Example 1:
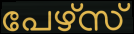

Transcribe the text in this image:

പേഴ്സ്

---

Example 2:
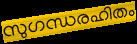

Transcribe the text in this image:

സുഗന്ധരഹിതം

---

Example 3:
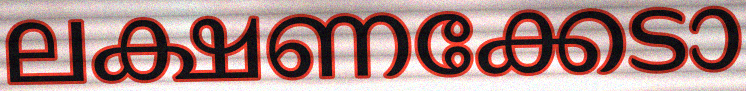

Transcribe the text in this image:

ലക്ഷണക്കേടാ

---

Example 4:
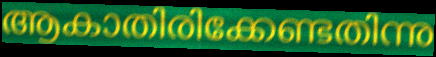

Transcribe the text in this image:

ആകാതിരിക്കേണ്ടതിന്നു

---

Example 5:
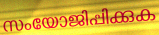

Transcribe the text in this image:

സംയോജിപ്പിക്കുക